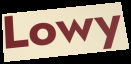
Lowy